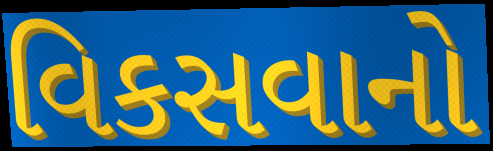
વિકસવાનો